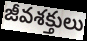
జీవశక్తులు